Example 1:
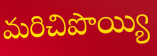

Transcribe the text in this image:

మరిచిపొయ్యి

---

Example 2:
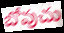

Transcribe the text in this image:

బోవుచు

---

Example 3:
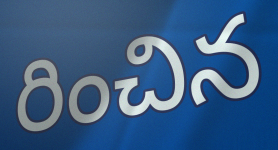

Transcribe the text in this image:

రించిన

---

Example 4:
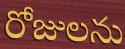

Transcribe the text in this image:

రోజులను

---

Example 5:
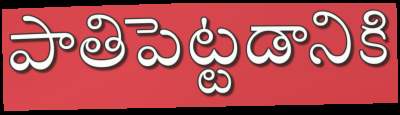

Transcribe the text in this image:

పాతిపెట్టడానికి